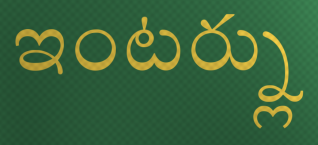
ఇంటర్న్లు